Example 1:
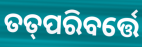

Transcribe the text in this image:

ତତ୍‌ପରିବର୍ତ୍ତେ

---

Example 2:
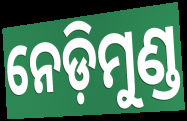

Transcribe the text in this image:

ନେଡ଼ିମୁଣ୍ଡ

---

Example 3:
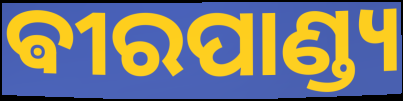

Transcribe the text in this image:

ଵୀରପାଣ୍ଡ୍ୟ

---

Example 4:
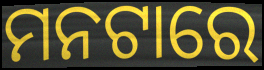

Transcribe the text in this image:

ମନଟାରେ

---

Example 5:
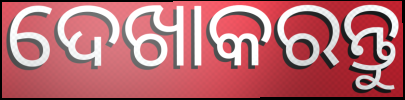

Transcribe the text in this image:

ଦେଖାକରନ୍ତୁ